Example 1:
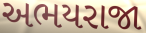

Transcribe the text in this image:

અભયરાજા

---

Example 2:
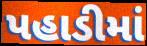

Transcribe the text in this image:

પહાડીમાં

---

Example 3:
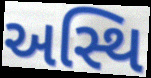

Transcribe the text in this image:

અસ્થિ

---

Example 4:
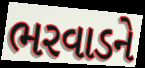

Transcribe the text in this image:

ભરવાડને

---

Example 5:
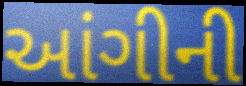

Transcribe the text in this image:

આંગીની